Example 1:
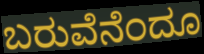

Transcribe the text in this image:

ಬರುವೆನೆಂದೂ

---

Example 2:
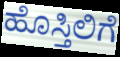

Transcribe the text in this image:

ಹೊಸ್ತಿಲಿಗೆ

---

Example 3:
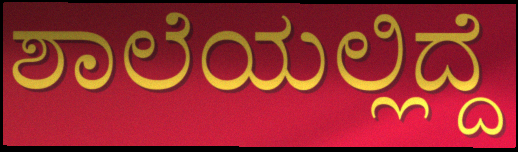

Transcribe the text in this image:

ಶಾಲೆಯಲ್ಲಿದ್ದೆ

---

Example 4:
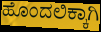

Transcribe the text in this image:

ಹೊಂದಲಿಕ್ಕಾಗಿ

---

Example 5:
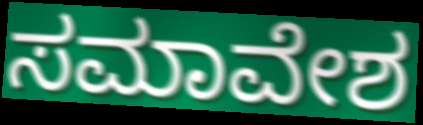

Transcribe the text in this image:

ಸಮಾವೇಶ